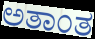
ಅತಾಂತ